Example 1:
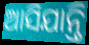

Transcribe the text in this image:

ଆସିଯାନ୍ତି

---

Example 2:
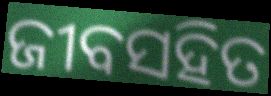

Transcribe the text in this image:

ଜୀବସହିତ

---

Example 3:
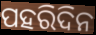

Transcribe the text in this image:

ପହରିଦିନ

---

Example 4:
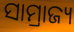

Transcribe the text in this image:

ସାମ୍ରାଜ୍ୟ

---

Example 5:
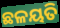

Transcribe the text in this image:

ଛଳୟତି